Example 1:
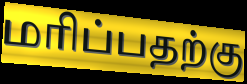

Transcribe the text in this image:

மரிப்பதற்கு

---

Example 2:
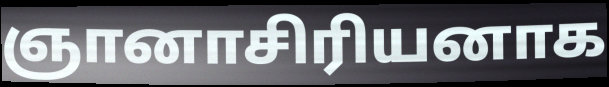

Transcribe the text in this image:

ஞானாசிரியனாக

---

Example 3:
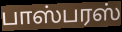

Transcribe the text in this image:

பாஸ்பரஸ்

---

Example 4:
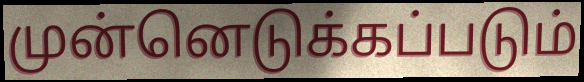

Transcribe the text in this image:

முன்னெடுக்கப்படும்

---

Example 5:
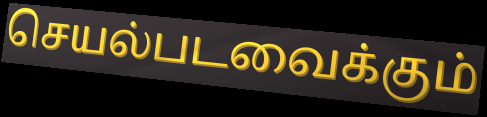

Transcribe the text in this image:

செயல்படவைக்கும்